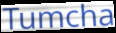
Tumcha